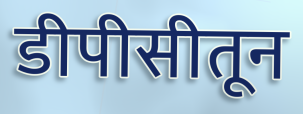
डीपीसीतून